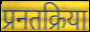
प्रनतक्रिया